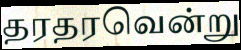
தரதரவென்று